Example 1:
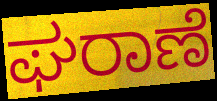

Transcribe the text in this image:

ಘರಾಣೆ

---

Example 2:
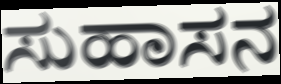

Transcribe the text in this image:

ಸುಹಾಸನ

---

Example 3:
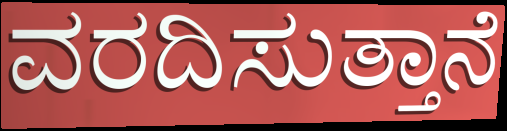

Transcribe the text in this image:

ವರದಿಸುತ್ತಾನೆ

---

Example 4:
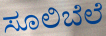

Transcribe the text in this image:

ಸೂಲಿಬೆಲೆ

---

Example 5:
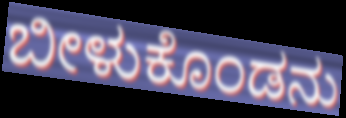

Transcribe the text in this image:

ಬೀಳುಕೊಂಡನು